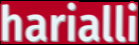
harialli